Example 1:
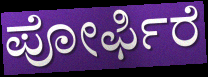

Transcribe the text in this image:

ಪೋರ್ಫಿರೆ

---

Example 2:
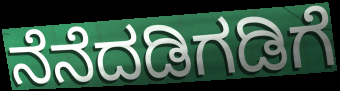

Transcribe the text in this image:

ನೆನೆದಡಿಗಡಿಗೆ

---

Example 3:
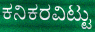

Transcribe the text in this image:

ಕನಿಕರವಿಟ್ಟು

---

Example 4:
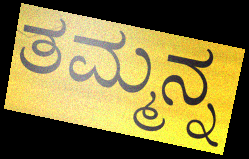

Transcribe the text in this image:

ತಮ್ಮನ್ನ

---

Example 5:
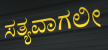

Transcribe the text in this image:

ಸತ್ಯವಾಗಲೀ